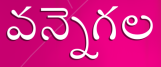
వన్నెగల